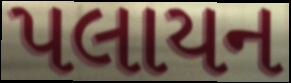
પલાયન